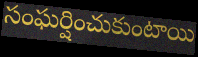
సంఘర్షించుకుంటాయి